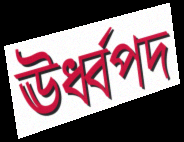
ঊর্ধ্বপদ